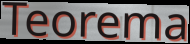
Teorema